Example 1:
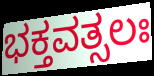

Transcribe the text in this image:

ಭಕ್ತವತ್ಸಲಃ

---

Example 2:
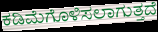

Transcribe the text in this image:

ಕಡಿಮೆಗೊಳಿಸಲಾಗುತ್ತದೆ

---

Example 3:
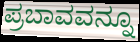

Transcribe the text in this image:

ಪ್ರಬಾವವನ್ನೂ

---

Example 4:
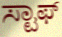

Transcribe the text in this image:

ಸ್ಟಾಫ್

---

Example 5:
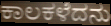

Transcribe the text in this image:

ಕಾಲಕಳೆದನು